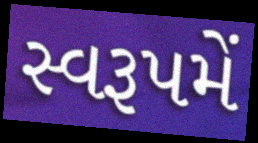
સ્વરૂપમેં